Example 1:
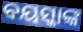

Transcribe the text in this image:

ବୟସ୍କାଙ୍କ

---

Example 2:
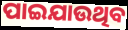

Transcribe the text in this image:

ପାଇଯାଉଥିବ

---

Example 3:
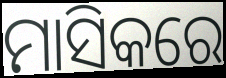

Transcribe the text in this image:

ମାସିକରେ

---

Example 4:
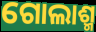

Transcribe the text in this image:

ଗୋଲାଶ୍ମ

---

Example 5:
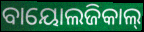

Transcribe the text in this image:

ବାୟୋଲଜିକାଲ୍